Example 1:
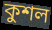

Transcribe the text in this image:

কুশল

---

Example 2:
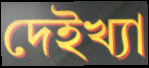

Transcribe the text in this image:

দেইখ্যা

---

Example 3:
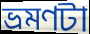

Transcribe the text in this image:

ভ্রমণটা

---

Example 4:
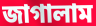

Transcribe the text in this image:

জাগালাম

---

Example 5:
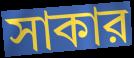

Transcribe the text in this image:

সাকার